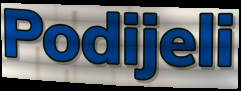
Podijeli